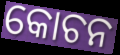
କୋଚନ